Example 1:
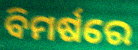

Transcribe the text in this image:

ବିମର୍ଷରେ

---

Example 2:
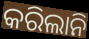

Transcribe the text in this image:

କରିଲାନି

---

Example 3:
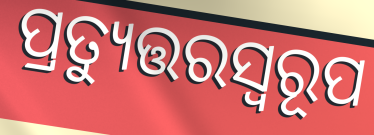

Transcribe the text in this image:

ପ୍ରତ୍ୟୁତ୍ତରସ୍ଵରୂପ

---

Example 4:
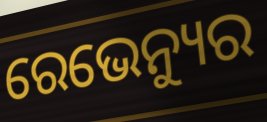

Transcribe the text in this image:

ରେଭେନ୍ୟୁର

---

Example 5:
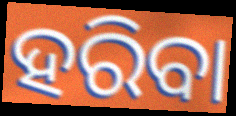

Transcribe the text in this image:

ହରିବା